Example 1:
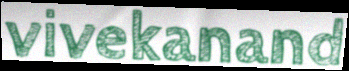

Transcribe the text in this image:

vivekanand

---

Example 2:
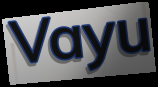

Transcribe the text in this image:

Vayu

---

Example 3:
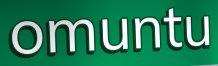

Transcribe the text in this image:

omuntu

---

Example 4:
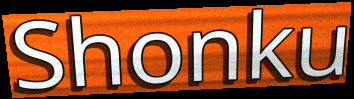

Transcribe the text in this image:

Shonku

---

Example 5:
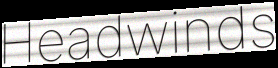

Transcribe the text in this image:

Headwinds